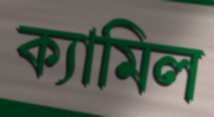
ক্যামিল